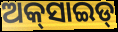
ଅକ୍‌ସାଇଡ୍